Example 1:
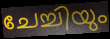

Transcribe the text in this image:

ചേച്ചിയും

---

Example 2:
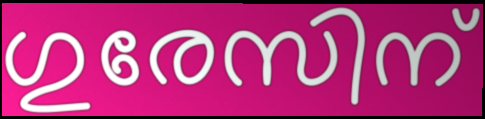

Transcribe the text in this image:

ഗുരേസിന്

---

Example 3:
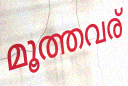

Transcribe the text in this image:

മൂത്തവര്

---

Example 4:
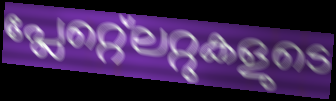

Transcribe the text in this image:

പ്ലേറ്റ്ലെറ്റുകളുടെ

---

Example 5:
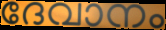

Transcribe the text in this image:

ദേവാനം